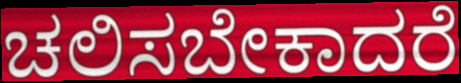
ಚಲಿಸಬೇಕಾದರೆ